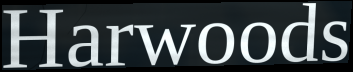
Harwoods